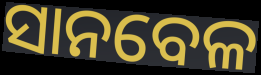
ସାନବେଳ